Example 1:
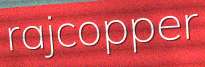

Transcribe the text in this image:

rajcopper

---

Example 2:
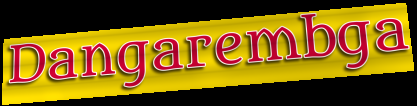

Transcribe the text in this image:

Dangarembga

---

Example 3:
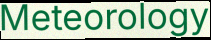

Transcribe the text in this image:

Meteorology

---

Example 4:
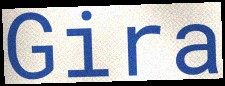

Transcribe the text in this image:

Gira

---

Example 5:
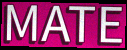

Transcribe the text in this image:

MATE